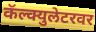
कॅल्क्युलेटरवर